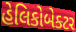
હેલિકોબેક્ટર